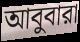
আবুবারা